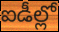
ఐడీల్లో